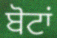
ਬੋਟਾਂ